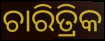
ଚାରିତ୍ରିକ